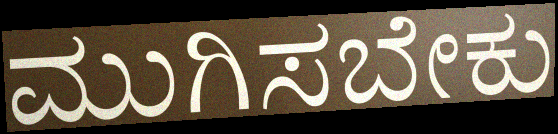
ಮುಗಿಸಬೇಕು